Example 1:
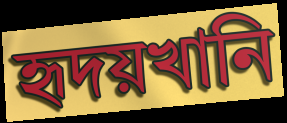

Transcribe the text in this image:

হৃদয়খানি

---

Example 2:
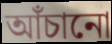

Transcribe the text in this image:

আঁচানো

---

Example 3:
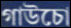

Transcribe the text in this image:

গাউচো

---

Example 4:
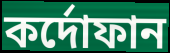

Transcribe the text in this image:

কর্দোফান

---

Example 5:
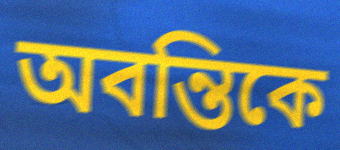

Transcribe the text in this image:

অবন্তিকে